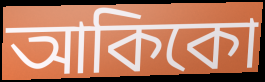
আকিকো